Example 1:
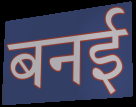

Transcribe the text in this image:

बनई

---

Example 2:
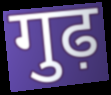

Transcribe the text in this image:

गुढ़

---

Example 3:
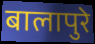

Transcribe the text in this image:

बालापुरे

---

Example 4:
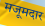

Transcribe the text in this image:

मजूमदार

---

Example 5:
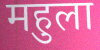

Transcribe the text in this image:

महुला